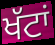
ਖੱਟਾਂ